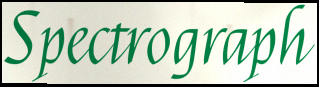
Spectrograph